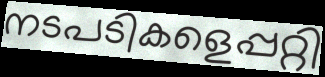
നടപടികളെപ്പറ്റി